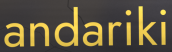
andariki